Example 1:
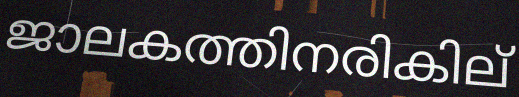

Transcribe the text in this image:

ജാലകത്തിനരികില്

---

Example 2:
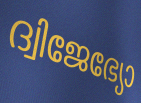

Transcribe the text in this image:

ദ്വിജേഭ്യോ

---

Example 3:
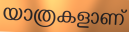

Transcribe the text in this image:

യാത്രകളാണ്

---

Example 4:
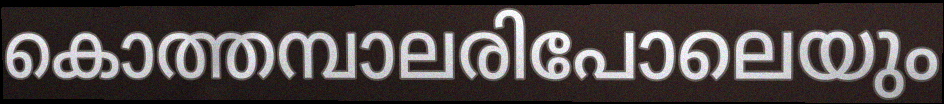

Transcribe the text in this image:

കൊത്തമ്പാലരിപോലെയും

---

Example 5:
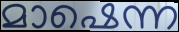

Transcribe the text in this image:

മാഷെന്ന